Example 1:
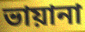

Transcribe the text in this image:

ভায়ানা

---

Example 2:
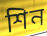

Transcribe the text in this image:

শিন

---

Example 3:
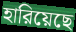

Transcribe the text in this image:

হারিয়েছে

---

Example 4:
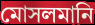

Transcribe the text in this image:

মোসলমানি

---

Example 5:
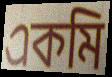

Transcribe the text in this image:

একমি